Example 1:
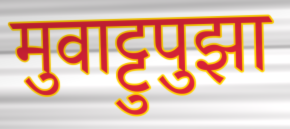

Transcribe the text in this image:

मुवाट्टुपुझा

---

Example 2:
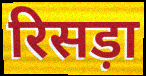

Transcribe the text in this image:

रिसड़ा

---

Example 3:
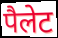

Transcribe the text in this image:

पैलेट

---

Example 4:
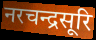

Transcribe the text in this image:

नरचन्द्रसूरि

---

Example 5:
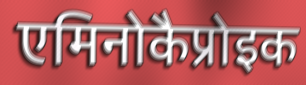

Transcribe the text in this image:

एमिनोकैप्रोइक